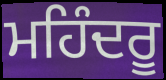
ਮਹਿੰਦਰੂ